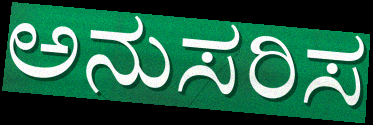
ಅನುಸರಿಸ